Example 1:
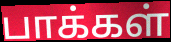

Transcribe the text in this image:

பாக்கள்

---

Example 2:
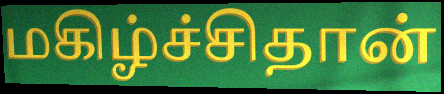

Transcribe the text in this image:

மகிழ்ச்சிதான்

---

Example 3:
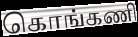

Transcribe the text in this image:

கொங்கணி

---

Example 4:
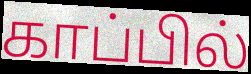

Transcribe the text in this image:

காப்பில்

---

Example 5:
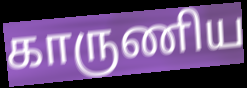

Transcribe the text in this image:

காருணிய